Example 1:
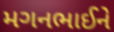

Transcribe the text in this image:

મગનભાઈને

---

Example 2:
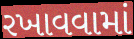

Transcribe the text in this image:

રખાવવામાં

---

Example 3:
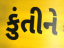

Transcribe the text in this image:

કુંતીને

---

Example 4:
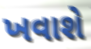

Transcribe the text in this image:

ખવાશે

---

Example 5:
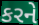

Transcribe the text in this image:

કરને